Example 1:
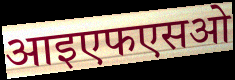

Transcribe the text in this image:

आइएफएसओ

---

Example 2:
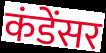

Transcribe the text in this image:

कंडेंसर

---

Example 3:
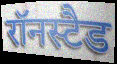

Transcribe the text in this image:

रॉनस्टैड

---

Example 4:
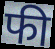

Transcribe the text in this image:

फी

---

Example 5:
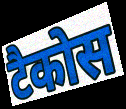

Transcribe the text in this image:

टैकोस